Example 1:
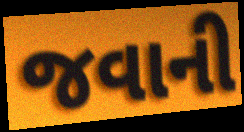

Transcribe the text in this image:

જવાની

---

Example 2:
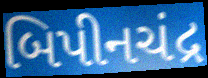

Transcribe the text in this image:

બિપીનચંદ્ર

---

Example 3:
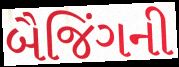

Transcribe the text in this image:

બૈજિંગની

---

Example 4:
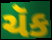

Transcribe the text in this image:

ચૅક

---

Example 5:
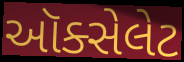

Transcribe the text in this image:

ઑક્સેલેટ